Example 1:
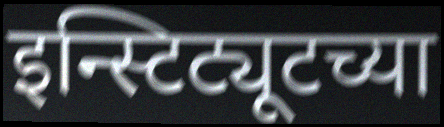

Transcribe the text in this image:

इन्स्टिट्यूटच्या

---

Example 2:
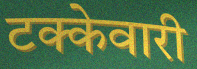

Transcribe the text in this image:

टक्केवारी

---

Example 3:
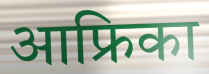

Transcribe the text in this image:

आफ्रिका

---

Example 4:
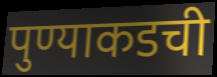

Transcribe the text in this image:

पुण्याकडची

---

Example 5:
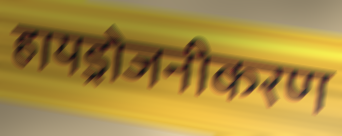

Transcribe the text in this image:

हायड्रोजनीकरण